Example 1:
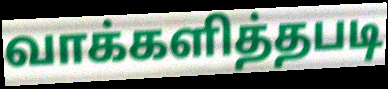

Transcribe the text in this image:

வாக்களித்தபடி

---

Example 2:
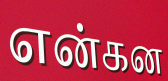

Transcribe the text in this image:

என்கன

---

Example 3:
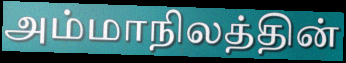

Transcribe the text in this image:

அம்மாநிலத்தின்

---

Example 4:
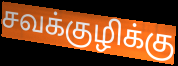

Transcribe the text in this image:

சவக்குழிக்கு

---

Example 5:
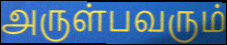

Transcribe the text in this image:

அருள்பவரும்